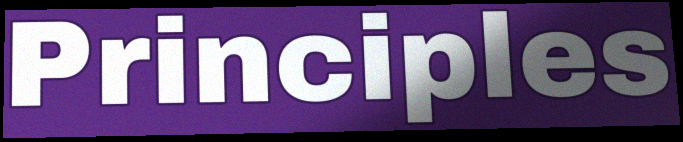
Principles